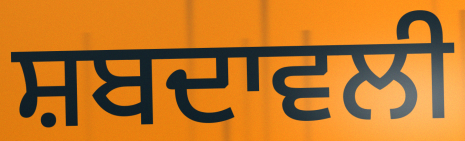
ਸ਼ਬਦਾਵਲੀ